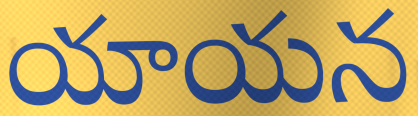
యాయన